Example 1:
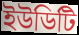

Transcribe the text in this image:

ইউডিটি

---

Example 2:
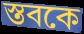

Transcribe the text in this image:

স্তবকে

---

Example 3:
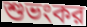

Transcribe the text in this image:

শুভংকর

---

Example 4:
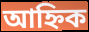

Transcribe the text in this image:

আহ্নিক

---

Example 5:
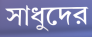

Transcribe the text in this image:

সাধুদের